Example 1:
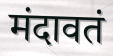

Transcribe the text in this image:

मंदावतं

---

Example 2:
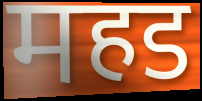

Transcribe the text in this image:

महड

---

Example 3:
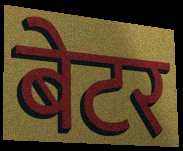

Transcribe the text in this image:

बेटर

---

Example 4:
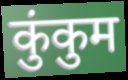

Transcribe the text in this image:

कुंकुम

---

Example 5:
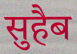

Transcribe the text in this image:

सुहैब